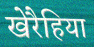
खेरैहिया